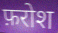
फ़रोश